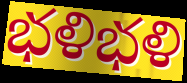
భళిభళి